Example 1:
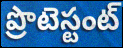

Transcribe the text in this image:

ప్రొటెస్టంట్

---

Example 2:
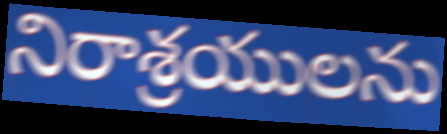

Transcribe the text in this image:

నిరాశ్రయులను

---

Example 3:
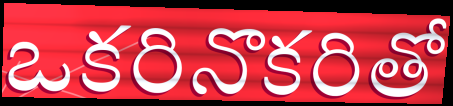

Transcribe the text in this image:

ఒకరినొకరితో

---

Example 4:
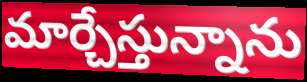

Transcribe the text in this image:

మార్చేస్తున్నాను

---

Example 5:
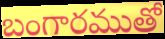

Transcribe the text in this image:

బంగారముతో